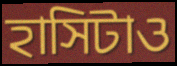
হাসিটাও